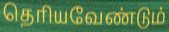
தெரியவேண்டும்